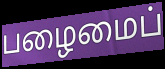
பழைமைப்